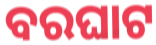
ବରଘାଟ